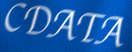
CDATA